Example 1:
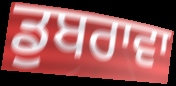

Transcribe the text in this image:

ਡੁਬਰਾਵਾ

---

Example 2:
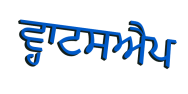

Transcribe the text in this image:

ਵ੍ਹਾਟਸਐਪ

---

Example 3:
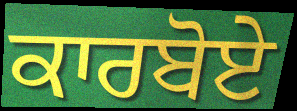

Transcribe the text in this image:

ਕਾਰਬੋਏ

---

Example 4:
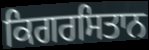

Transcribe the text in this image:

ਕਿਗਰਸਿਤਾਨ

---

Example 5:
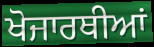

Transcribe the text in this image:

ਖੋਜਾਰਥੀਆਂ